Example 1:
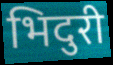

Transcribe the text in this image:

भिदुरी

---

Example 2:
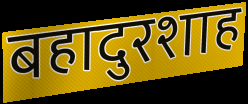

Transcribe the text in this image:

बहादुरशाह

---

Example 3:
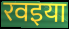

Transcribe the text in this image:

रवइया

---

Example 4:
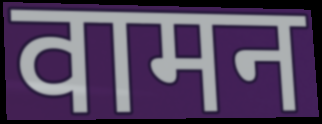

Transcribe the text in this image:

वामन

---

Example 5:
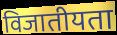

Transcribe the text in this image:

विजातीयता